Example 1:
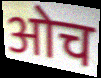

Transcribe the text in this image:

ओच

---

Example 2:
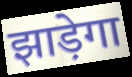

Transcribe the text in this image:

झाड़ेगा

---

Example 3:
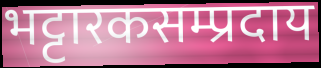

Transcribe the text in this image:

भट्टारकसम्प्रदाय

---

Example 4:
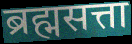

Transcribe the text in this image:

ब्रह्मसत्ता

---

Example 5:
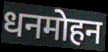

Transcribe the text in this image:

धनमोहन